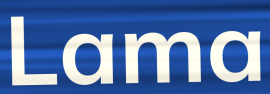
Lama